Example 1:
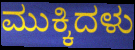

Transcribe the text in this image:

ಮುಕ್ಕಿದಳು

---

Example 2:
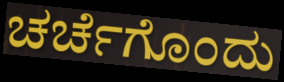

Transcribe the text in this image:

ಚರ್ಚೆಗೊಂದು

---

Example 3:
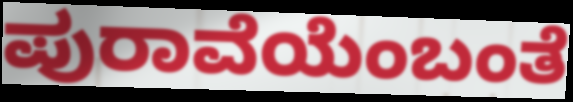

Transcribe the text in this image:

ಪುರಾವೆಯೆಂಬಂತೆ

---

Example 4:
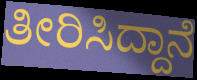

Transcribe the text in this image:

ತೀರಿಸಿದ್ದಾನೆ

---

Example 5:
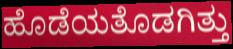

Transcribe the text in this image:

ಹೊಡೆಯತೊಡಗಿತ್ತು